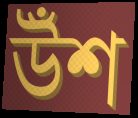
উঁশ